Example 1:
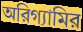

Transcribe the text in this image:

অরিগ্যামির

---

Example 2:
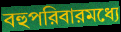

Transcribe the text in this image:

বহুপরিবারমধ্যে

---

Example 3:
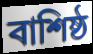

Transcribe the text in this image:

বাশিষ্ঠ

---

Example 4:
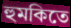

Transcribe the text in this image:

হুমকিতে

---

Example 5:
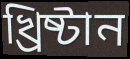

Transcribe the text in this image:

খ্রিষ্টান